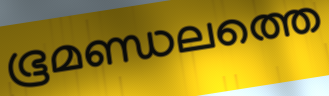
ഭൂമണ്ഡലത്തെ